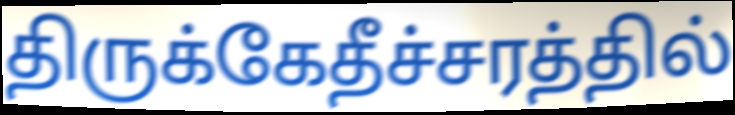
திருக்கேதீச்சரத்தில்